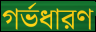
গর্ভধারণ